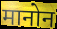
मानोन